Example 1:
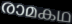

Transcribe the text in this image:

രാമകഥ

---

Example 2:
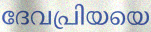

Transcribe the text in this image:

ദേവപ്രിയയെ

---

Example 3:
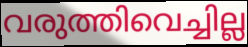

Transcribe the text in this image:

വരുത്തിവെച്ചില്ല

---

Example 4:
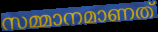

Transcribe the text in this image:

സമ്മാനമാണത്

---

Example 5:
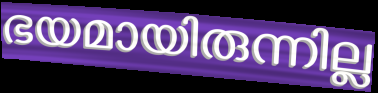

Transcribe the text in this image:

ഭയമായിരുന്നില്ല